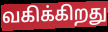
வகிக்கிறது